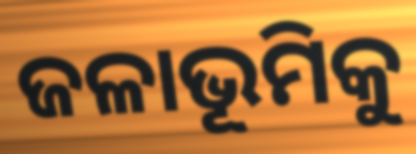
ଜଳାଭୂମିକୁ